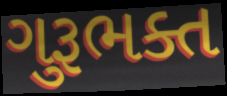
ગુરૂભક્ત